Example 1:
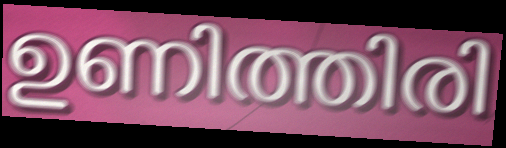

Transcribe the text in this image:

ഉണിത്തിരി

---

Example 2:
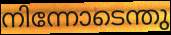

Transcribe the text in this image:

നിന്നോടെന്തു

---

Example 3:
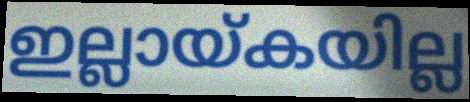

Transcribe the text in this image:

ഇല്ലായ്കയില്ല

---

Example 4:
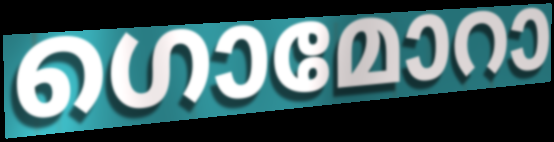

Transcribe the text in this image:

ഗൊമോറാ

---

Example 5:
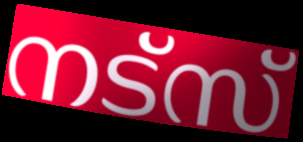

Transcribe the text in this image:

നട്സ്